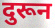
दुरून